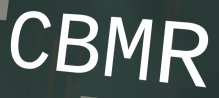
CBMR